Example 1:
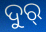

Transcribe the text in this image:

ଦୁର୍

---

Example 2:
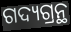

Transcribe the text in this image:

ଗଦ୍ୟଗ୍ରନ୍ଥ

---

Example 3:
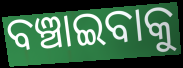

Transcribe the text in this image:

ବଞ୍ଚାଇବାକୁ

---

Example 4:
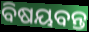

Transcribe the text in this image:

ବିଷୟବନ୍ତ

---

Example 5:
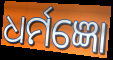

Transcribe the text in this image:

ଧର୍ମଜ୍ଞୋ